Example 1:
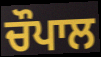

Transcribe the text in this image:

ਚੌਪਾਲ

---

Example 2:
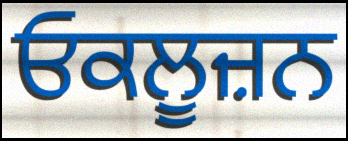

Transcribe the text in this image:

ਓਕਲੂਜ਼ਨ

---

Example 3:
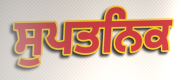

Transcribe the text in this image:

ਸੁਪਤਨਿਕ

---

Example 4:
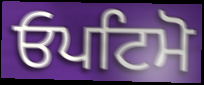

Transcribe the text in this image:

ਓਪਟਿਮੋ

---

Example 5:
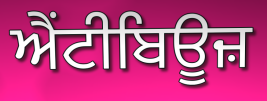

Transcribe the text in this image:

ਐਂਟੀਬਿਊਜ਼